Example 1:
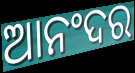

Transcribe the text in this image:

ଆନଂଦର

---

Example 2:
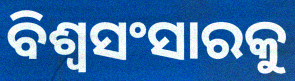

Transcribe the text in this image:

ବିଶ୍ୱସଂସାରକୁ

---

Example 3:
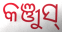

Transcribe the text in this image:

କଞ୍ଜୁସ୍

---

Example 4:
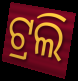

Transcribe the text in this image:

ଟ୍ରଲି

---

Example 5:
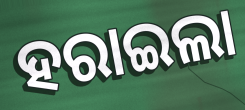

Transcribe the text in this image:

ହରାଇଲା